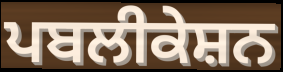
ਪਬਲੀਕੇਸ਼ਨ